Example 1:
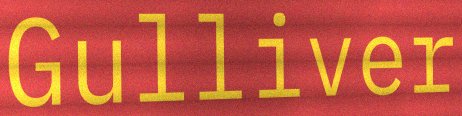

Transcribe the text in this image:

Gulliver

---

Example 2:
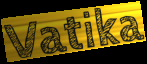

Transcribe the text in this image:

Vatika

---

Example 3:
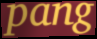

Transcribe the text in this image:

pang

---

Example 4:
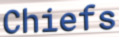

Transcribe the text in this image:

Chiefs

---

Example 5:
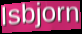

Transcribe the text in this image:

Isbjorn